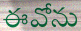
ఈవోను